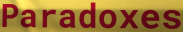
Paradoxes